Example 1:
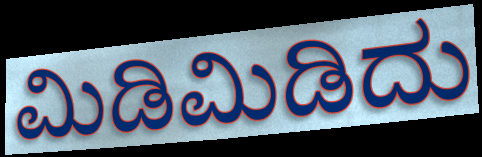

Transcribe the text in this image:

ಮಿಡಿಮಿಡಿದು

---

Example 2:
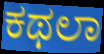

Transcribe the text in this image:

ಕಥಲಾ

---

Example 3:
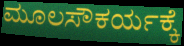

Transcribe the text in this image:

ಮೂಲಸೌಕರ್ಯಕ್ಕೆ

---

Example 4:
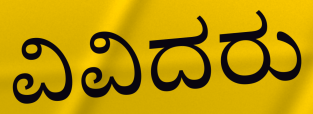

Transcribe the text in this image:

ವಿವಿದರು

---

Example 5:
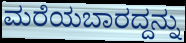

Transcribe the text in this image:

ಮರೆಯಬಾರದ್ದನ್ನು